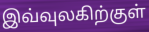
இவ்வுலகிற்குள்